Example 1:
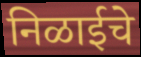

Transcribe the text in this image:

निळाईचे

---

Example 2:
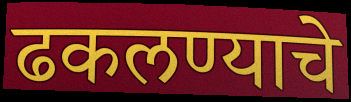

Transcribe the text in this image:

ढकलण्याचे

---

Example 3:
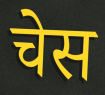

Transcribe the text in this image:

चेस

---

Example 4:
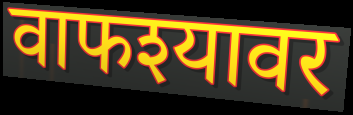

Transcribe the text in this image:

वाफश्यावर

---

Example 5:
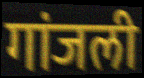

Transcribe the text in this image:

गांजली